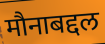
मौनाबद्दल